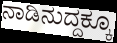
ನಾಡಿನುದ್ದಕ್ಕೂ